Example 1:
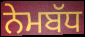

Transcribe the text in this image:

ਨੇਮਬੱਧ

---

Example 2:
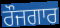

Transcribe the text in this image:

ਰੌਜਗਾਰ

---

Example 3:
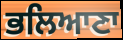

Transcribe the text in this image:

ਭਲਿਆਣਾ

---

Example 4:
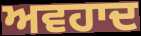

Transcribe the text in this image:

ਅਵਹਾਦ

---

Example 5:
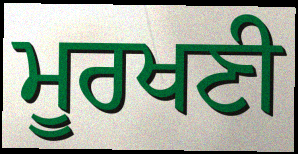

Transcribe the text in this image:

ਮੂਰਖਣੀ